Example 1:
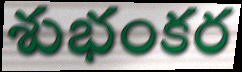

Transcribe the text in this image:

శుభంకర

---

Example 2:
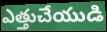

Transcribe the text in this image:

ఎత్తుచేయుడి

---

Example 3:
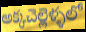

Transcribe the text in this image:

అక్కచెల్లెళ్ళలో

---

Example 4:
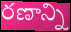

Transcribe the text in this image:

రణాన్ని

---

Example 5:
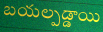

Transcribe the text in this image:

బయల్పడ్డాయి